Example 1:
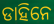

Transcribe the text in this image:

ଡାହିନେ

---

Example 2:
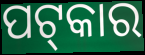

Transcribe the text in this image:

ପଟ୍‌କାର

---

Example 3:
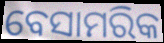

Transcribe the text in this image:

ବେସାମରିକ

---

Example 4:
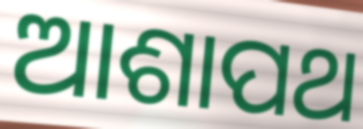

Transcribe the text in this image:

ଆଶାପଥ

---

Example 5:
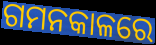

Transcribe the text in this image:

ଗମନକାଳରେ